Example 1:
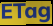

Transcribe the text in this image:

ETag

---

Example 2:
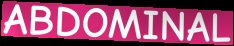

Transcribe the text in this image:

ABDOMINAL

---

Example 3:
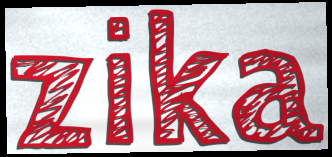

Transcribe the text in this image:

zika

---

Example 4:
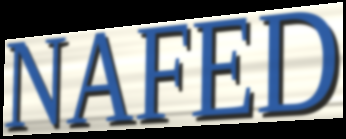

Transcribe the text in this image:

NAFED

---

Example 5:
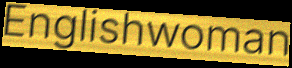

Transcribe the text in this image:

Englishwoman